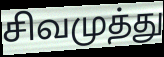
சிவமுத்து